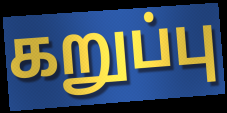
கறுப்பு